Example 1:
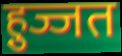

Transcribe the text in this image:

ह़ुज्जत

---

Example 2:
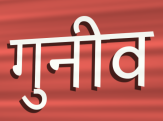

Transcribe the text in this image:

गुनीव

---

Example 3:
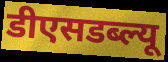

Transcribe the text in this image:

डीएसडब्ल्यू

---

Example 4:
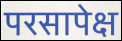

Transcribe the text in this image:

परसापेक्ष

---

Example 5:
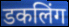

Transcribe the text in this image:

डकलिंग